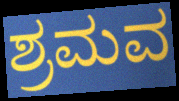
ಶ್ರಮವ